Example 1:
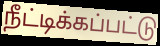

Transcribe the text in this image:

நீட்டிக்கப்பட்டு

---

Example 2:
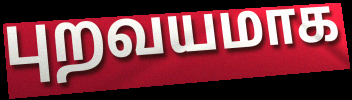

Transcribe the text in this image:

புறவயமாக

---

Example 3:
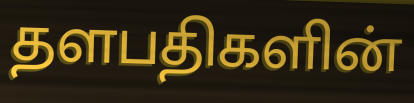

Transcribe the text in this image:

தளபதிகளின்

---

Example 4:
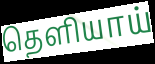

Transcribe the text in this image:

தெளியாய்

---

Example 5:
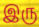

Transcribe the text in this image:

இரு